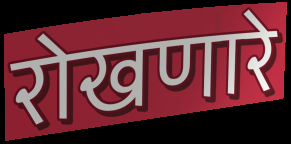
रोखणारे